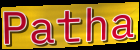
Patha